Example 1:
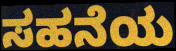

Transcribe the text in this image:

ಸಹನೆಯ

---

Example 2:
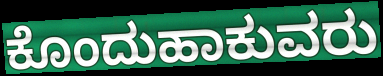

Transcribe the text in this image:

ಕೊಂದುಹಾಕುವರು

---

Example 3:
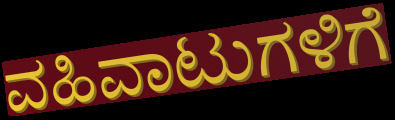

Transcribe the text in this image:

ವಹಿವಾಟುಗಳಿಗೆ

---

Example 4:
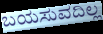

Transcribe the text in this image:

ಬಯಸುವದಿಲ್ಲ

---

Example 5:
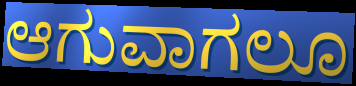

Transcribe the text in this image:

ಆಗುವಾಗಲೂ